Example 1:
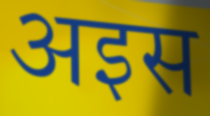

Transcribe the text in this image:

अइस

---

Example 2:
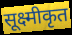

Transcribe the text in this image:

सूक्ष्मीकृत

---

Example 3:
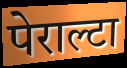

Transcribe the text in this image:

पेराल्टा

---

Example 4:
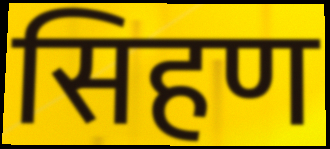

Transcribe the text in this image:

सिहण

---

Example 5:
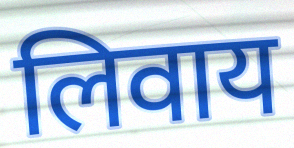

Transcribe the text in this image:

लिवाय